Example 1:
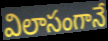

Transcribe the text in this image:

విలాసంగానే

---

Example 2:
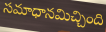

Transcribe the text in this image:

సమాధానమిచ్చింది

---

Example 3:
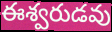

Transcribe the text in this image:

ఈశ్వరుడవు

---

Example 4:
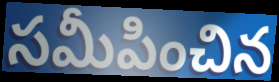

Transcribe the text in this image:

సమీపించిన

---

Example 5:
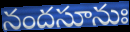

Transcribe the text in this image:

నందసూనుః